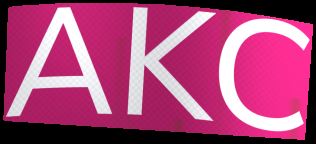
AKC